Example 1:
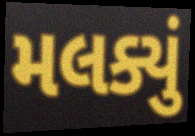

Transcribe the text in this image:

મલક્યું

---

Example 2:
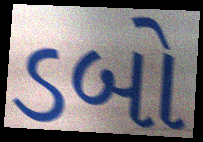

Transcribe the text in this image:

ડબો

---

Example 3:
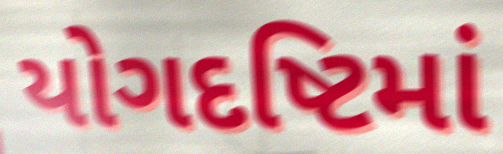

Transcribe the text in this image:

યોગદષ્ટિમાં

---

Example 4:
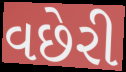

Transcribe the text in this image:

વછેરી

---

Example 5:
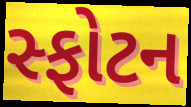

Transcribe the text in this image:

સ્ફોટન